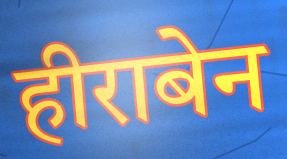
हीराबेन